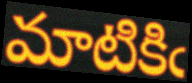
మాటికిఁ